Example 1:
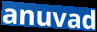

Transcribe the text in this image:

anuvad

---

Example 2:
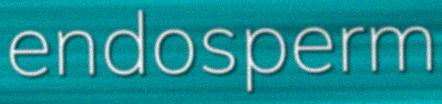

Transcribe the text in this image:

endosperm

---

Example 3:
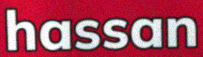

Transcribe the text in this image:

hassan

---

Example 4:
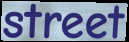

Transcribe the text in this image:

street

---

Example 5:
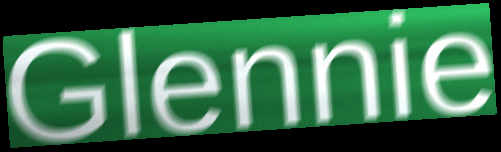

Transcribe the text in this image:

Glennie